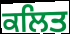
ਕਲਿਤ